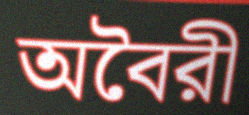
অবৈরী